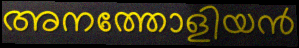
അനത്തോളിയൻ